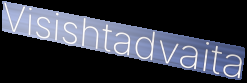
Visishtadvaita